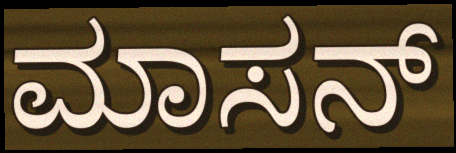
ಮಾಸನ್